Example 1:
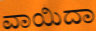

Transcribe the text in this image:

ವಾಯಿದಾ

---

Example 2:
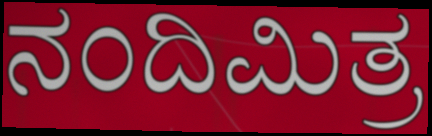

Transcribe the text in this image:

ನಂದಿಮಿತ್ರ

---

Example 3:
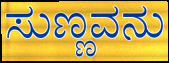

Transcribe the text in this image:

ಸುಣ್ಣವನು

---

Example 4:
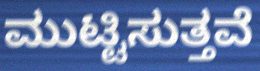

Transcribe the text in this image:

ಮುಟ್ಟಿಸುತ್ತವೆ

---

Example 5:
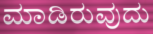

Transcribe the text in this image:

ಮಾಡಿರುವುದು